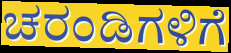
ಚರಂಡಿಗಳಿಗೆ